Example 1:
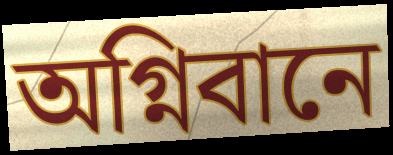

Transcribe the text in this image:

অগ্নিবানে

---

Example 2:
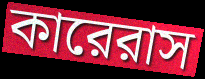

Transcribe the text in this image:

কারেরাস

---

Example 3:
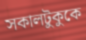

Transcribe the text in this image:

সকালটুকুকে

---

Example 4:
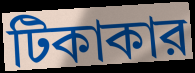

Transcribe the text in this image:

টিকাকার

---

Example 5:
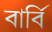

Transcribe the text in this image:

বার্বি